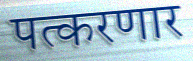
पत्करणार